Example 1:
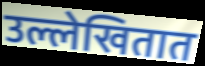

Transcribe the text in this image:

उल्लेखितात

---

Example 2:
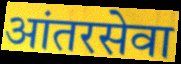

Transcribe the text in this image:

आंतरसेवा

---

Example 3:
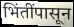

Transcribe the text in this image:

भिंतींपासून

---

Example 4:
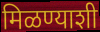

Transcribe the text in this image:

मिळण्याशी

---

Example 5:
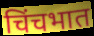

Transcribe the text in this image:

चिंचभात